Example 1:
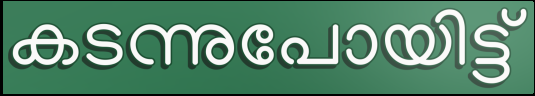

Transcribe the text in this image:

കടന്നുപോയിട്ട്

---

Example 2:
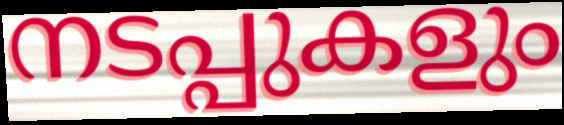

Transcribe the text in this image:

നടപ്പുകളും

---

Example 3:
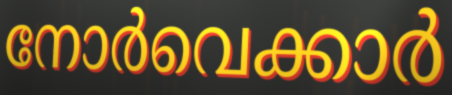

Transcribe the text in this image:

നോർവെക്കാർ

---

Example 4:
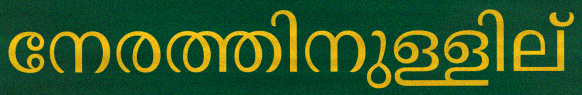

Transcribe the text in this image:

നേരത്തിനുള്ളില്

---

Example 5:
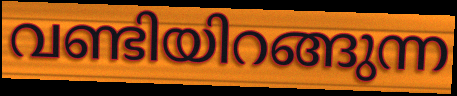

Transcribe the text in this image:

വണ്ടിയിറങ്ങുന്ന